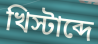
খিস্টাব্দে